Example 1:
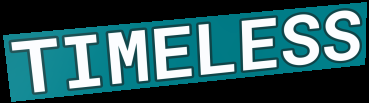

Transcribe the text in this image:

TIMELESS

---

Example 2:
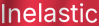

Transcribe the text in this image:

Inelastic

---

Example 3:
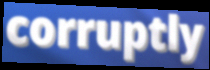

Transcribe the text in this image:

corruptly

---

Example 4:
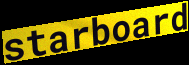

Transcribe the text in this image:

starboard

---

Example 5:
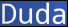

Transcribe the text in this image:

Duda